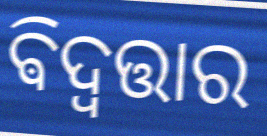
ଵିଦ୍ବତ୍ତାର